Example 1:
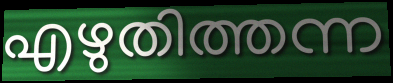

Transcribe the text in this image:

എഴുതിത്തന്ന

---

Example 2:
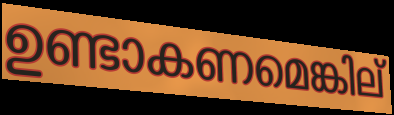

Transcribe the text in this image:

ഉണ്ടാകണമെങ്കില്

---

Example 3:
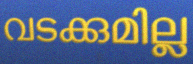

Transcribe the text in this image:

വടക്കുമില്ല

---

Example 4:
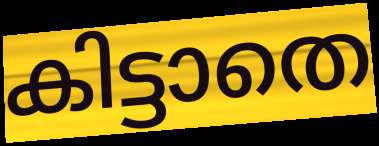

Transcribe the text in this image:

കിട്ടാതെ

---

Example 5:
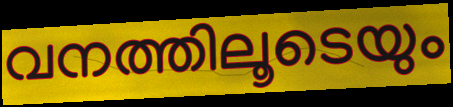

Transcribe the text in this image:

വനത്തിലൂടെയും